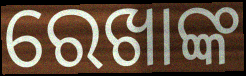
ରେଖାଙ୍କ